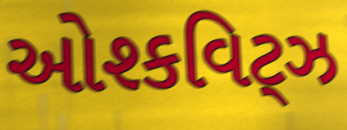
ઓશ્કવિટ્ઝ